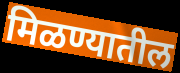
मिळण्यातील